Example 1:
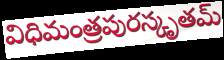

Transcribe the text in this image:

విధిమంత్రపురస్కృతమ్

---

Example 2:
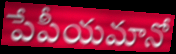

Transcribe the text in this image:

పేపీయమానో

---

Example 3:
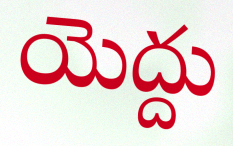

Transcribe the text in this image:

యెద్దు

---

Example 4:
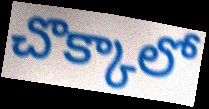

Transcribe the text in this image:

చొక్కాలో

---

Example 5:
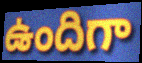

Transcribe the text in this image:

ఉందిగా